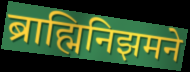
ब्राह्मिनिझमने